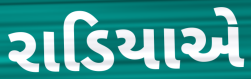
રાડિયાએ